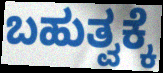
ಬಹುತ್ವಕ್ಕೆ